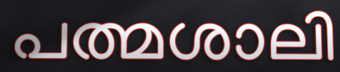
പത്മശാലി